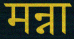
मन्ना